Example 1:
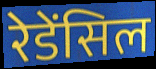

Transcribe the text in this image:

रेडेंसिल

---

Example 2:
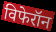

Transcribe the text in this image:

विफेरॉन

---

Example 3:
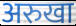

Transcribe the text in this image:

अरुखा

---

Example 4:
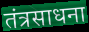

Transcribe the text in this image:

तंत्रसाधना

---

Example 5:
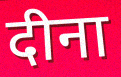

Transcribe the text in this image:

दीना